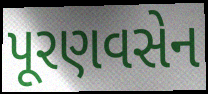
પૂરણવસેન